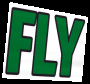
FLY